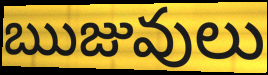
ఋజువులు